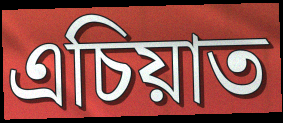
এচিয়াত